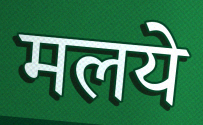
मलये